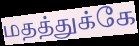
மதத்துக்கே